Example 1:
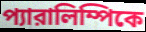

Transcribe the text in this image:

প্যারালিম্পিকে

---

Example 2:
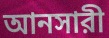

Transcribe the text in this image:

আনসারী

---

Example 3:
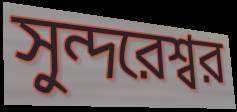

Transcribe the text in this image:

সুন্দরেশ্বর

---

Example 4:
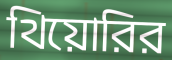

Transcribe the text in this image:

থিয়োরির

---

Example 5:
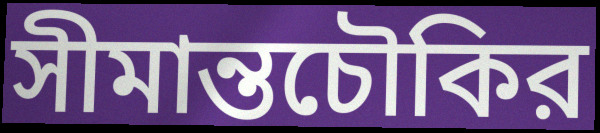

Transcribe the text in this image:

সীমান্তচৌকির